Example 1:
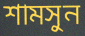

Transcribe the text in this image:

শামসুন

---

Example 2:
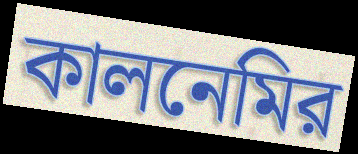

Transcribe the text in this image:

কালনেমির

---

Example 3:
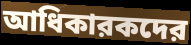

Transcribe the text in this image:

আধিকারকদের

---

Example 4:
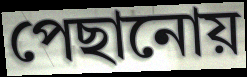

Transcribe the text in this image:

পেছানোয়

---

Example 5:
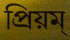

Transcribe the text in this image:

প্রিয়ম্